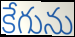
కేగును